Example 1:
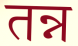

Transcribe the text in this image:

तन्न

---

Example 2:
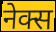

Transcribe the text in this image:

नेक्स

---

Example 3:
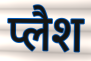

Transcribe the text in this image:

प्लैश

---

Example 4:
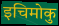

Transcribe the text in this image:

इचिमोकु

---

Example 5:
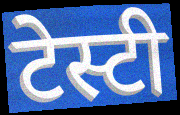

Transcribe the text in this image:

टेस्टी